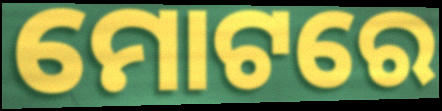
ମୋଟରେ